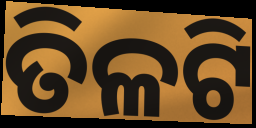
ତିଳଟି